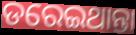
ଡରେଇଥାନ୍ତା